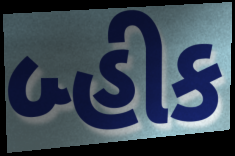
બ્હીક